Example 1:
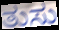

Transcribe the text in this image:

ತುಸು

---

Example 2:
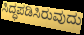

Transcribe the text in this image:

ಸಿದ್ಧಪಡಿಸಿರುವುದು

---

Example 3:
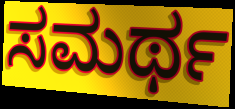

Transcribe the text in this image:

ಸಮರ್ಥ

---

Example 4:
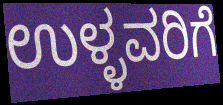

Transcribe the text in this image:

ಉಳ್ಳವರಿಗೆ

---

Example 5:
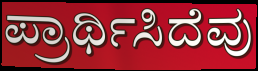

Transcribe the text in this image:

ಪ್ರಾರ್ಥಿಸಿದೆವು